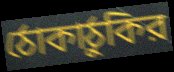
ঠোকাঠুকির